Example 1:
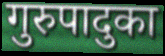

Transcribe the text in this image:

गुरुपादुका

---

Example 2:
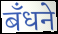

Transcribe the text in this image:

बँधने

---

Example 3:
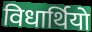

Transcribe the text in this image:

विधार्थियो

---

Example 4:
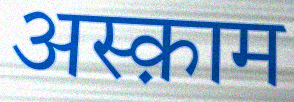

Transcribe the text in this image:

अस्क़ाम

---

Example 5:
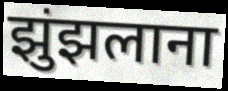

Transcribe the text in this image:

झुंझलाना